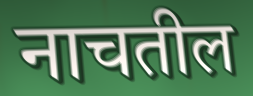
नाचतील